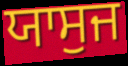
ਯਾਸੁਜ